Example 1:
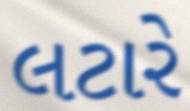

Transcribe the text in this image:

લટારે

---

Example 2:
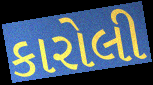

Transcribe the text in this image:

કારોલી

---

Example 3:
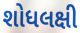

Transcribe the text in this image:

શોધલક્ષી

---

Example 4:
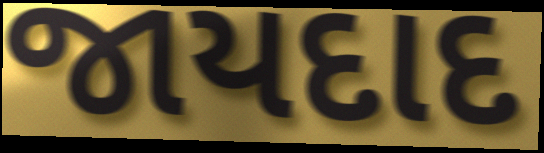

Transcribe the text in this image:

જાયદાદ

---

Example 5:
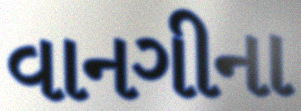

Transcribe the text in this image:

વાનગીના